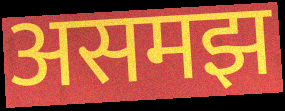
असमझ